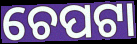
ଚେପଟା